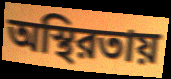
অস্থিরতায়